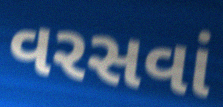
વરસવાં